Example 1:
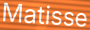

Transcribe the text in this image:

Matisse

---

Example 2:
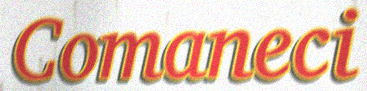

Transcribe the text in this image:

Comaneci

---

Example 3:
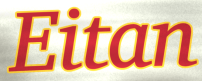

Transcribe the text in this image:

Eitan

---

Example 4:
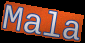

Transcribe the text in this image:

Mala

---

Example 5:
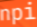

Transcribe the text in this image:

npi